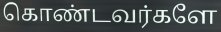
கொண்டவர்களே